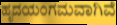
ಹೃದಯಂಗಮವಾಗಿವೆ